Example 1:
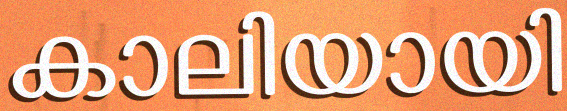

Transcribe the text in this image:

കാലിയായി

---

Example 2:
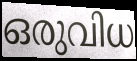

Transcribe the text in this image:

ഒരുവിധ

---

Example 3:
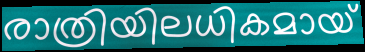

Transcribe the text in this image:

രാത്രിയിലധികമായ്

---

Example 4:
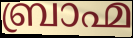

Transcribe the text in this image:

ബ്രാഹ്മ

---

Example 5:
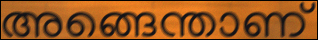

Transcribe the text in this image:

അങ്ങെന്താണ്